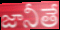
జానీతే